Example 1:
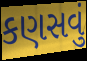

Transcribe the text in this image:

કણસવું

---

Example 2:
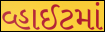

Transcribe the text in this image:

વ્હાઈટમાં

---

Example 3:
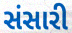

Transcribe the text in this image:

સંસારી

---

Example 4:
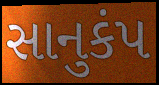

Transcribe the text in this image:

સાનુકંપ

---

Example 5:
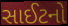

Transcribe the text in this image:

સાઈટનો